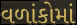
વળાંકોમાં